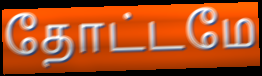
தோட்டமே